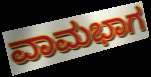
ವಾಮಭಾಗ